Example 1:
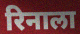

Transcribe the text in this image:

रिनाला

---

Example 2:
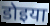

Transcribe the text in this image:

डोइया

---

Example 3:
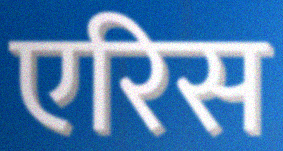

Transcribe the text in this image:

एरिस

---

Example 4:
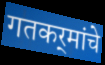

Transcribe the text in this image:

गतकर्मांचे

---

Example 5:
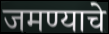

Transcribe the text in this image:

जमण्याचे